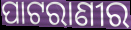
ପାଟରାଣୀର